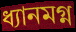
ধ্যানমগ্ন